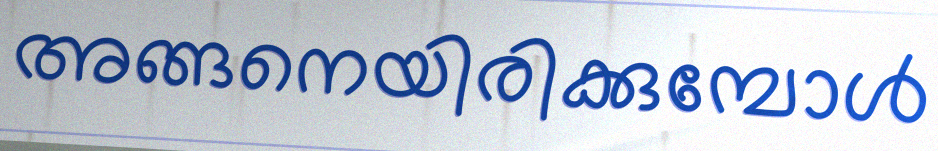
അങ്ങനെയിരിക്കുമ്പോൾ